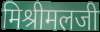
मिश्रीमलजी